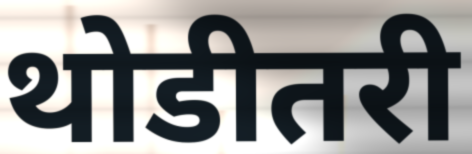
थोडीतरी